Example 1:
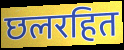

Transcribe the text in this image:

छलरहित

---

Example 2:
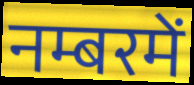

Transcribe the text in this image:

नम्बरमें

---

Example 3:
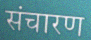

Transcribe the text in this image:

संचारण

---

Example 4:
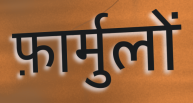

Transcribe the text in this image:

फ़ार्मुलों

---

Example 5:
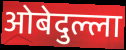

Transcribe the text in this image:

ओबेदुल्ला